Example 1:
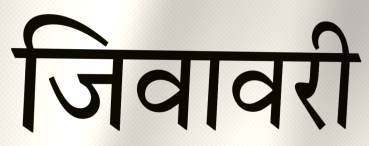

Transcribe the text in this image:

जिवावरी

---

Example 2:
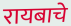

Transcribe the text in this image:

रायबाचे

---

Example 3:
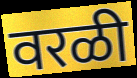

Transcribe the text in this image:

वरळी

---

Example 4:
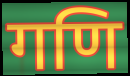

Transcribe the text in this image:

गणि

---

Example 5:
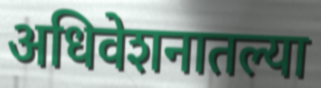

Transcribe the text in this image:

अधिवेशनातल्या